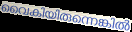
വൈകിയിരുന്നെങ്കിൽ